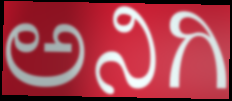
ಅನಿಗಿ